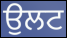
ਉਲਟ